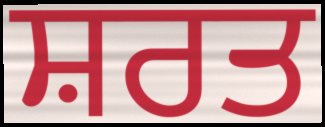
ਸ਼ਰਤ